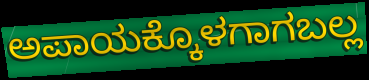
ಅಪಾಯಕ್ಕೊಳಗಾಗಬಲ್ಲ